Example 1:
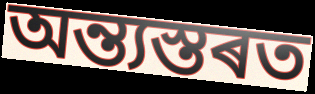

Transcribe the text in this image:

অন্ত্যস্তৰত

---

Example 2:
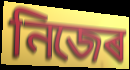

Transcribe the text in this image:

নিজেৰ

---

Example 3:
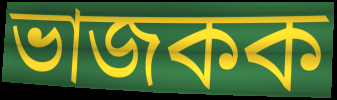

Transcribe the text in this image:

ভাজকক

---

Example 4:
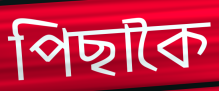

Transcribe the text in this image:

পিছাকৈ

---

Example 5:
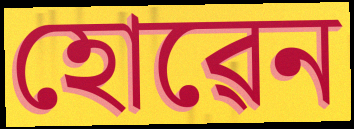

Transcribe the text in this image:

হোৱেন